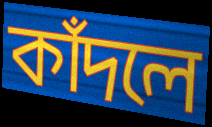
কাঁদলে